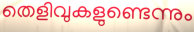
തെളിവുകളുണ്ടെന്നും